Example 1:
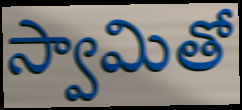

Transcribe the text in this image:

స్వామితో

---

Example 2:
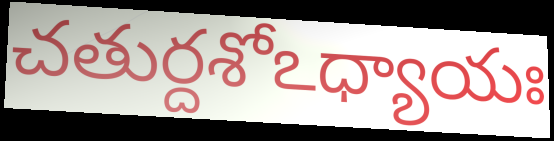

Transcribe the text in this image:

చతుర్దశోఽధ్యాయః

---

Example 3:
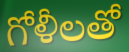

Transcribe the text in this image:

గోళీలతో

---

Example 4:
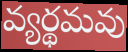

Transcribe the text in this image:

వ్యర్థమవు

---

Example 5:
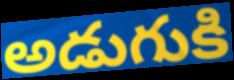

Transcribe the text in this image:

అడుగుకి